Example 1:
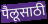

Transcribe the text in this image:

पैलूसाठी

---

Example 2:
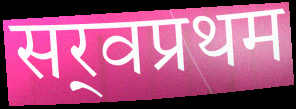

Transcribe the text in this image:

सर्वप्रथम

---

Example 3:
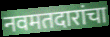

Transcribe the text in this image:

नवमतदारांचा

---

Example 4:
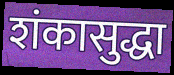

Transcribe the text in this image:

शंकासुद्धा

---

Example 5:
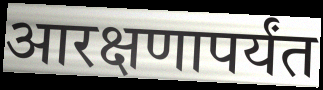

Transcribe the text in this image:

आरक्षणापर्यंत